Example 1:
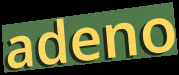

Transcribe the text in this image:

adeno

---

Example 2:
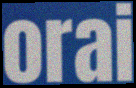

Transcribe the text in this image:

orai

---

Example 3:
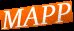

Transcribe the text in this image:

MAPP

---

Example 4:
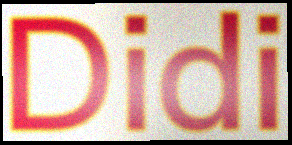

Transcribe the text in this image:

Didi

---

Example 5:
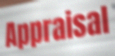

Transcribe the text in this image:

Appraisal